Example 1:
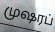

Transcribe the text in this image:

முஷரப்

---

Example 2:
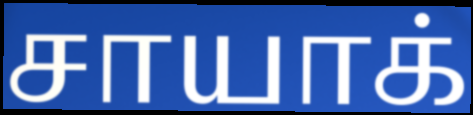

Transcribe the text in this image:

சாயாக்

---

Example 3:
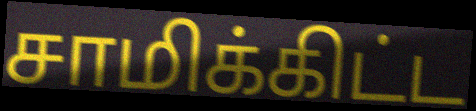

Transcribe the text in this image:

சாமிக்கிட்ட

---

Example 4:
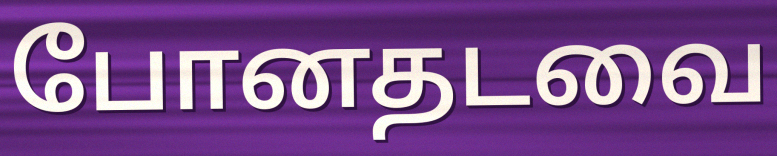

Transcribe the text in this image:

போனதடவை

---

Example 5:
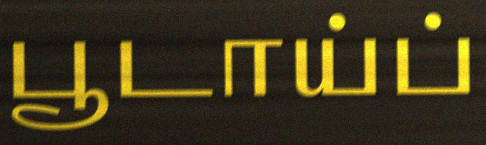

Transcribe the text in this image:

பூடாய்ப்